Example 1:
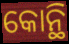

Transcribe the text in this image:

କୋନ୍ଥି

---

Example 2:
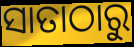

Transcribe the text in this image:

ସାତାଠାରୁ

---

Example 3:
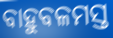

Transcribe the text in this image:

ବାହୁବଳମସ୍ତ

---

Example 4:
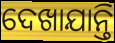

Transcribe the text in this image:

ଦେଖାଯାନ୍ତି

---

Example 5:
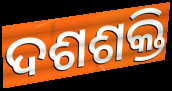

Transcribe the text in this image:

ଦଶଶକ୍ତି